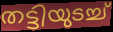
തട്ടിയുടച്ച്